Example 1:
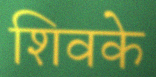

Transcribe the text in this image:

शिवके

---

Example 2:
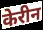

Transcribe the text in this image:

केरीन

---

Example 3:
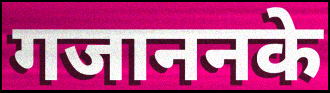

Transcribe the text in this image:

गजाननके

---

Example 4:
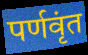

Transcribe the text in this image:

पर्णवृंत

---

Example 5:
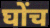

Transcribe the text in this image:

घोंच